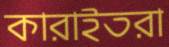
কারাইতরা